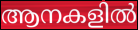
ആനകളിൽ